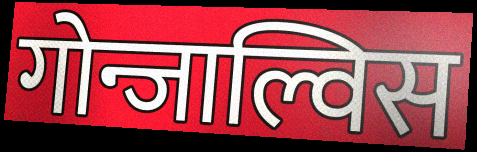
गोन्जाल्विस